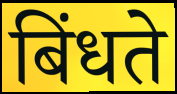
बिंधते